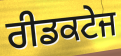
ਰੀਡਕਟੇਜ